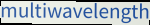
multiwavelength